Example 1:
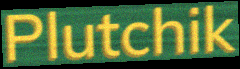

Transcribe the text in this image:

Plutchik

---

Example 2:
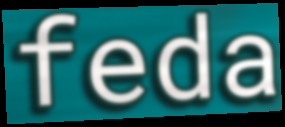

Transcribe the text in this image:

feda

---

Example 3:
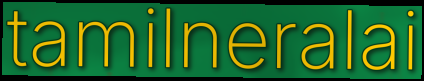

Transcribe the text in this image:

tamilneralai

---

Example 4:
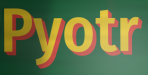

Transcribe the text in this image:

Pyotr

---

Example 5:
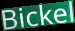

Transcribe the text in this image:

Bickel